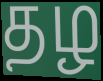
தழ